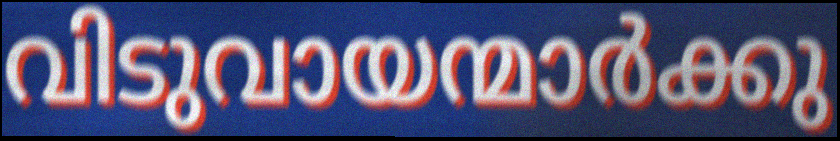
വിടുവായന്മാർക്കു